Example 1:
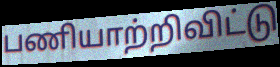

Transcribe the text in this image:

பணியாற்றிவிட்டு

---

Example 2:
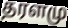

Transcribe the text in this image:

தரளமு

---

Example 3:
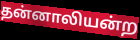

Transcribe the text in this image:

தன்னாலியன்ற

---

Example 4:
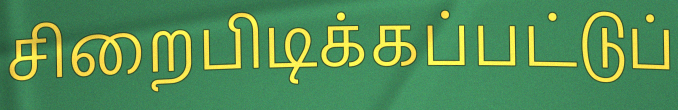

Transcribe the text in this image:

சிறைபிடிக்கப்பட்டுப்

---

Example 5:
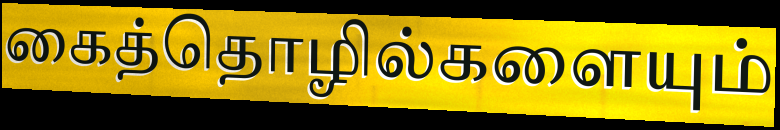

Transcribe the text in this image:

கைத்தொழில்களையும்